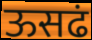
ऊसढं